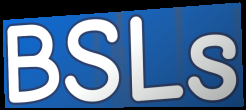
BSLs